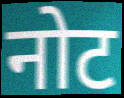
नोट